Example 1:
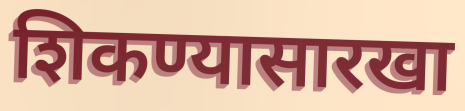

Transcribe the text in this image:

शिकण्यासारखा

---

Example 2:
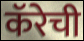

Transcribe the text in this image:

कॅरेची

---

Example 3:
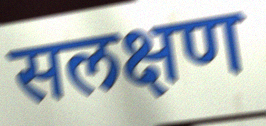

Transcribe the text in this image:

सलक्षण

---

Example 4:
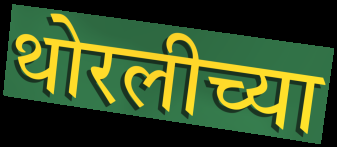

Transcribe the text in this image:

थोरलीच्या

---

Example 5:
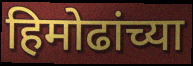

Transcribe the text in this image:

हिमोढांच्या